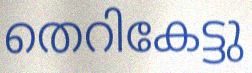
തെറികേട്ടു